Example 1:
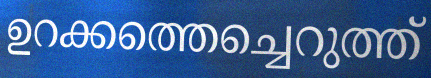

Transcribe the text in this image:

ഉറക്കത്തെച്ചെറുത്ത്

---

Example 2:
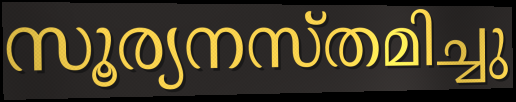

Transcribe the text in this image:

സൂര്യനസ്തമിച്ചു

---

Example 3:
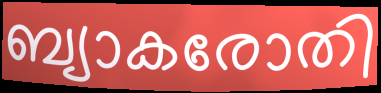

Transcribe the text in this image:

ബ്യാകരോതി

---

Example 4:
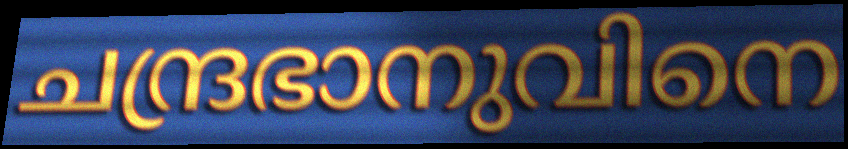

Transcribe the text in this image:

ചന്ദ്രഭാനുവിനെ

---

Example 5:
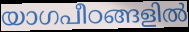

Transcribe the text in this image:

യാഗപീഠങ്ങളിൽ